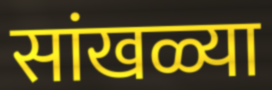
सांखळ्या